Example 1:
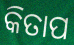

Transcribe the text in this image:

କିତାପ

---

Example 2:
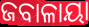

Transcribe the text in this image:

ଜବାଳାୟା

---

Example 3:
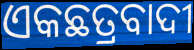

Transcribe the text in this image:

ଏକଛତ୍ରବାଦୀ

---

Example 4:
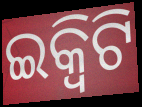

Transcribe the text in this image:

ଇକ୍ବିଟି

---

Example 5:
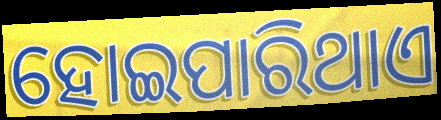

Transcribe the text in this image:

ହୋଇପାରିଥାଏ